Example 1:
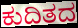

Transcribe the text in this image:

ಕುದಿತದ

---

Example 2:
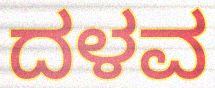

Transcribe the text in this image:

ದಳವ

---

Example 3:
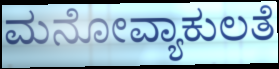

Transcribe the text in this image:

ಮನೋವ್ಯಾಕುಲತೆ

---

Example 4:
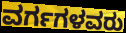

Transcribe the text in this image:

ವರ್ಗಗಳವರು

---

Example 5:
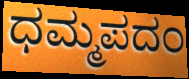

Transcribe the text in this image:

ಧಮ್ಮಪದಂ